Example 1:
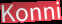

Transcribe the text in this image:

Konni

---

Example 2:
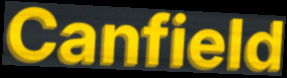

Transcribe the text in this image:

Canfield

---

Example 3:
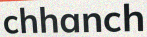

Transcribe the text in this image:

chhanch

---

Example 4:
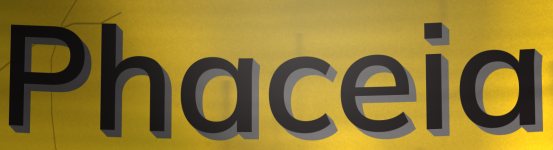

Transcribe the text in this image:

Phaceia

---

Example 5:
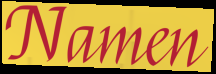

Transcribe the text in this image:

Namen